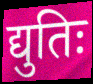
द्युतिः